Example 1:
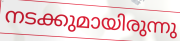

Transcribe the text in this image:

നടക്കുമായിരുന്നു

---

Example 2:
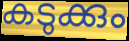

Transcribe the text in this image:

കടുക്കും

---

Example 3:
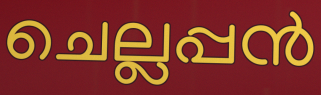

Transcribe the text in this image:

ചെല്ലപ്പൻ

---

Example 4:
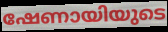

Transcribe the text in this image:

ഷേണായിയുടെ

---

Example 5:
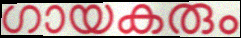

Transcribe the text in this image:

ഗായകരും